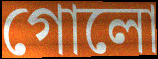
গোলো